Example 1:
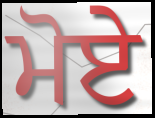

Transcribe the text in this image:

ਮੋਏ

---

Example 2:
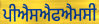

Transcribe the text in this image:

ਪੀਐਸਐਫਐਮਸੀ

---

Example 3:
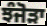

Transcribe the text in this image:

ਝੰਜੋੜਾ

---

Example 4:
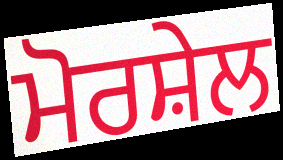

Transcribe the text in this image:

ਮੋਰਸ਼ੇਲ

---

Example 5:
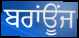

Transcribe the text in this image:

ਬਰਾਂਊਂਜ